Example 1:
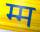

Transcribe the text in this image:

म्म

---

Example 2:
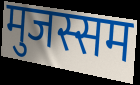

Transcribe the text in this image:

मुजस्सम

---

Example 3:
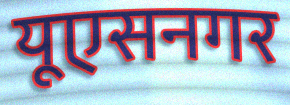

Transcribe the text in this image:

यूएसनगर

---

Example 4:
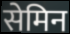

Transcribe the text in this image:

सेमिन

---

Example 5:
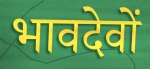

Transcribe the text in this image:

भावदेवों